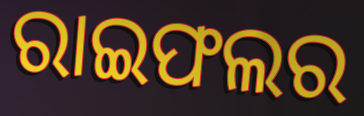
ରାଇଫଲର